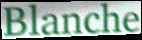
Blanche